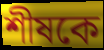
শীষকে